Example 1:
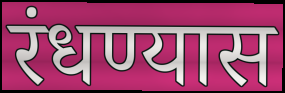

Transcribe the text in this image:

रंधण्यास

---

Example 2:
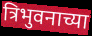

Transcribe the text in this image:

त्रिभुवनाच्या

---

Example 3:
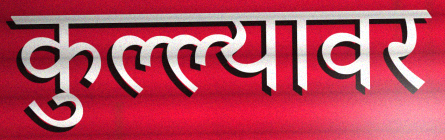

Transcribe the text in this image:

कुल्ल्यावर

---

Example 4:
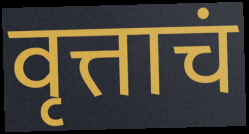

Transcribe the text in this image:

वृत्ताचं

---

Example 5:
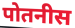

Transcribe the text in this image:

पोतनीस